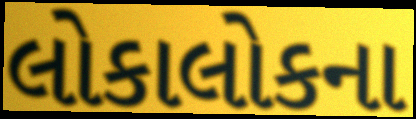
લોકાલોકના